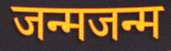
जन्मजन्म